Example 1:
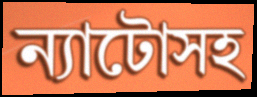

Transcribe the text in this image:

ন্যাটোসহ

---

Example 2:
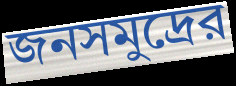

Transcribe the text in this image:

জনসমুদ্রের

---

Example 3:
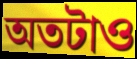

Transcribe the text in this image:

অতটাও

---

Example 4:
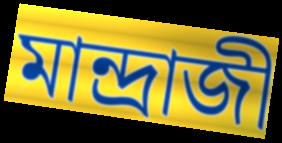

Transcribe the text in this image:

মান্দ্রাজী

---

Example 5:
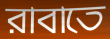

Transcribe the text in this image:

রাবাতে